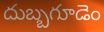
దుబ్బగూడెం